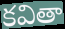
కవితా